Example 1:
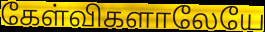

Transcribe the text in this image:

கேள்விகளாலேயே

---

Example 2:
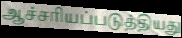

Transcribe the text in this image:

ஆச்சரியப்படுத்தியது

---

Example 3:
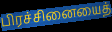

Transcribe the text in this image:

பிரச்சினையைத்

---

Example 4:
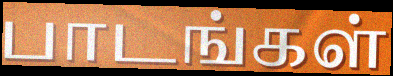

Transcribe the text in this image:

பாடங்கள்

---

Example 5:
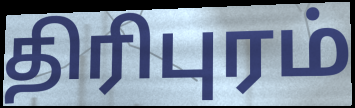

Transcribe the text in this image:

திரிபுரம்